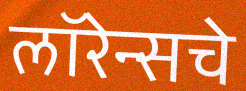
लॉरेन्सचे